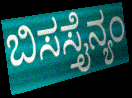
ಬಿಸಸ್ತೈನ್ಯಂ